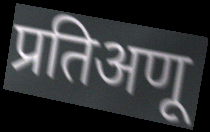
प्रतिअणू